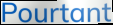
Pourtant